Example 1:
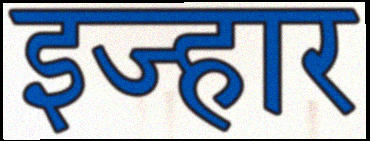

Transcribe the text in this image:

इज्हार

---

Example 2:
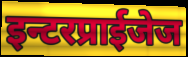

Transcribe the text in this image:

इन्टरप्राईजेज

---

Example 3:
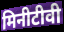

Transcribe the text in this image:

मिनीटीवी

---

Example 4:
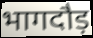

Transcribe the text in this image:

भागदौड़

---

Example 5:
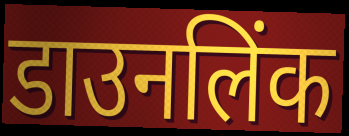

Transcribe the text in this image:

डाउनलिंक